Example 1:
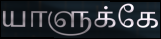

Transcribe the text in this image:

யாளுக்கே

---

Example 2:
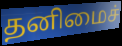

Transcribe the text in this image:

தனிமைச்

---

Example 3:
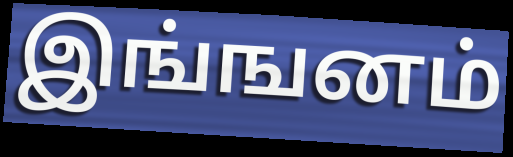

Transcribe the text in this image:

இங்ஙனம்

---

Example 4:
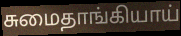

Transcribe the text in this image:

சுமைதாங்கியாய்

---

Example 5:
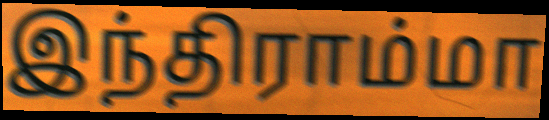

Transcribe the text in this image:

இந்திராம்மா